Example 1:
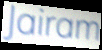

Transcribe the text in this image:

Jairam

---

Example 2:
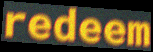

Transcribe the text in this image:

redeem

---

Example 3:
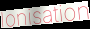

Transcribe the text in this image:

Ionisation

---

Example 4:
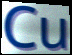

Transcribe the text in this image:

Cu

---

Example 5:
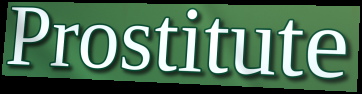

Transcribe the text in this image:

Prostitute